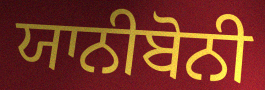
ਯਾਨੀਬੋਨੀ